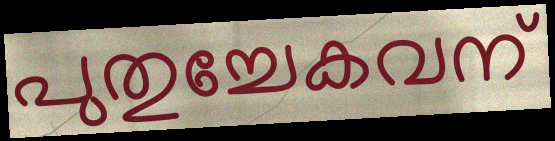
പുതുച്ചേകവന്